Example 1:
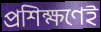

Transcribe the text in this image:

প্রশিক্ষণেই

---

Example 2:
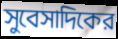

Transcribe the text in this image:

সুবেসাদিকের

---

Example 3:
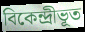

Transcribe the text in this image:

বিকেন্দ্রীভূত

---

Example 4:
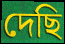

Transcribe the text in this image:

দেছি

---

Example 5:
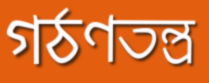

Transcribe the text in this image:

গঠণতন্ত্র